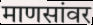
माणसांवर